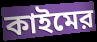
কাইমের